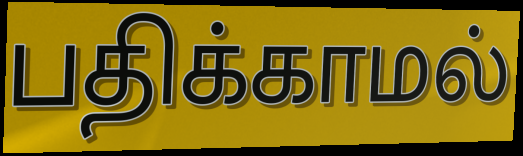
பதிக்காமல்